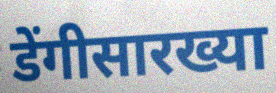
डेंगीसारख्या